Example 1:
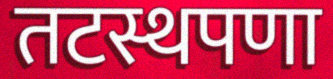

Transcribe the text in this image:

तटस्थपणा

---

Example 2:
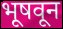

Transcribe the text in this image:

भूषवून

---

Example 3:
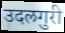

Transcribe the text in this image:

उदलगुरी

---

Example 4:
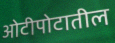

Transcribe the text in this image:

ओटीपोटातील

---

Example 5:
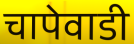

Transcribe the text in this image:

चापेवाडी